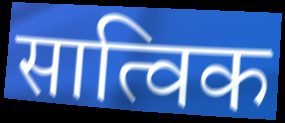
सात्विक